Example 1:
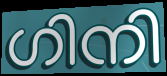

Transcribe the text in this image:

ഗിനി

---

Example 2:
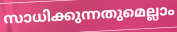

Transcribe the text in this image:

സാധിക്കുന്നതുമെല്ലാം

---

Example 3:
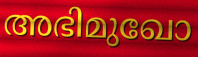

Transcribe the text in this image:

അഭിമുഖോ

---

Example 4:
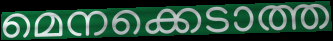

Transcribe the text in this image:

മെനക്കെടാത്ത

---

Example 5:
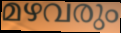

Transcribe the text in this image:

മഴവരും